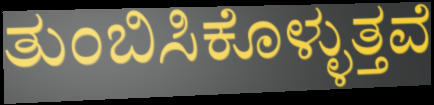
ತುಂಬಿಸಿಕೊಳ್ಳುತ್ತವೆ